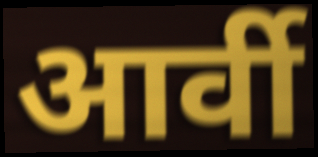
आर्वी